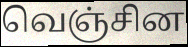
வெஞ்சின